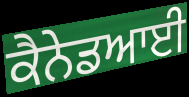
ਕੈਨੇਡਆਈ